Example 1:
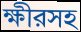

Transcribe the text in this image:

ক্ষীরসহ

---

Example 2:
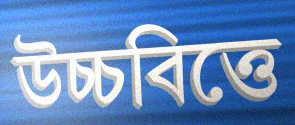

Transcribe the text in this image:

উচ্চবিত্তে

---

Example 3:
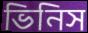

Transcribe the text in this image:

ভিনিস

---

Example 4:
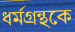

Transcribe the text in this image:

ধর্মগ্রন্থকে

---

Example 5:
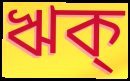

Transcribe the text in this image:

ঋক্